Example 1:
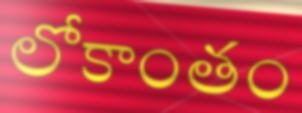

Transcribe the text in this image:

లోకాంతం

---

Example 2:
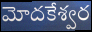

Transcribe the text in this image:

మోదకేశ్వర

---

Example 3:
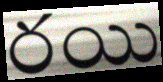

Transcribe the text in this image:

రయి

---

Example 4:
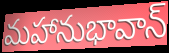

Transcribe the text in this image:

మహానుభావాన్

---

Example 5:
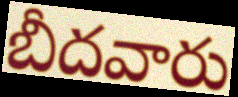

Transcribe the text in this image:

బీదవారు